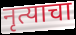
नृत्याचा